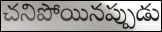
చనిపోయినప్పుడు